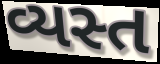
વ્યસ્ત